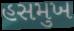
હસમુખ